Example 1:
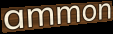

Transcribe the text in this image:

ammon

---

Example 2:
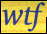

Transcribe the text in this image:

wtf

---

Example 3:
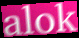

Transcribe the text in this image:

alok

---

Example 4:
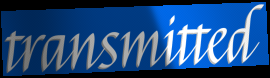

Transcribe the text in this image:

transmitted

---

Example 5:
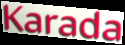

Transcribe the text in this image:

Karada